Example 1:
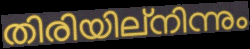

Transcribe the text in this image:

തിരിയില്നിന്നും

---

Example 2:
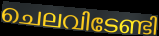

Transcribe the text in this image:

ചെലവിടേണ്ടി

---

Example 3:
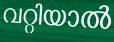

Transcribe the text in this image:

വറ്റിയാൽ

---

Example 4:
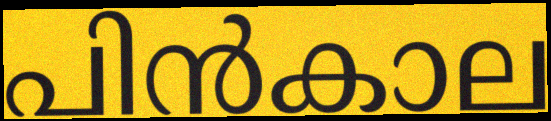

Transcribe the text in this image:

പിൻകാല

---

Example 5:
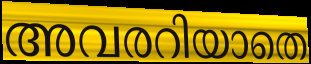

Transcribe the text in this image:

അവരറിയാതെ